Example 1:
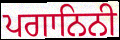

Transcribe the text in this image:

ਪਗਾਨਿਨੀ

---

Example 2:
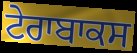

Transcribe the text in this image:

ਟੇਰਾਬਾਕਸ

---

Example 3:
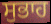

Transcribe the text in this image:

ਸੁਭਾਹ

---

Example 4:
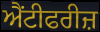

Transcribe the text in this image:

ਐਂਟੀਫਰੀਜ਼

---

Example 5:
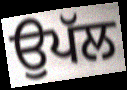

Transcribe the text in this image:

ਉਪੱਲ